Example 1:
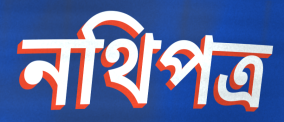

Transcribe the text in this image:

নথিপত্ৰ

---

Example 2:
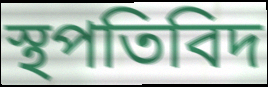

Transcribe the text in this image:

স্থপতিবিদ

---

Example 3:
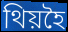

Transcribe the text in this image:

থিয়হৈ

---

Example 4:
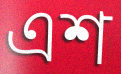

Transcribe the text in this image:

এশ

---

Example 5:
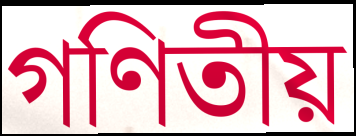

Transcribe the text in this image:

গণিতীয়